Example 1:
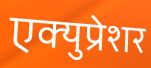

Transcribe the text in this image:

एक्युप्रेशर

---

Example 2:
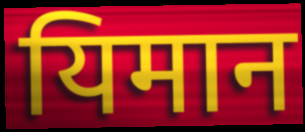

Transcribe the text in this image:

यिमान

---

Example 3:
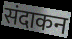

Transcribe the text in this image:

संदाकन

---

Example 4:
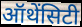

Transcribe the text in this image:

ऑथेंसिटी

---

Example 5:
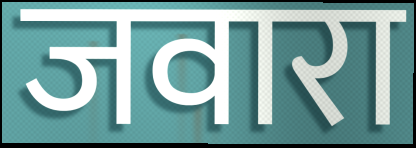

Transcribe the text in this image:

जवारा